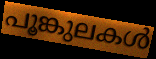
പൂങ്കുലകൾ